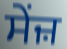
ਸੇਂਜ਼